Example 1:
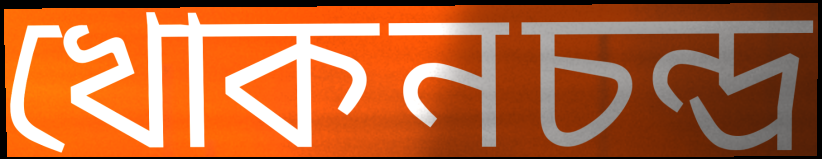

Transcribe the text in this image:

খোকনচন্দ্র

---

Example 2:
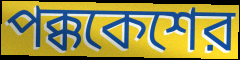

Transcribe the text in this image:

পক্ককেশের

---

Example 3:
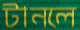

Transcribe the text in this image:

টানলে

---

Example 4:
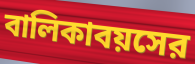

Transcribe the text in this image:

বালিকাবয়সের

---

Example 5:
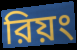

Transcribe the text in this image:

রিয়ং